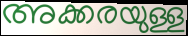
അക്കരയുള്ള